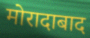
मोरादाबाद